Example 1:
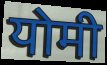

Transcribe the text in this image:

योमी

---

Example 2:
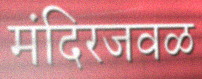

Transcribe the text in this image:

मंदिरजवळ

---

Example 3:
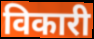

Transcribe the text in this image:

विकारी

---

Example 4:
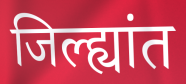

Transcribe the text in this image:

जिल्ह्यांत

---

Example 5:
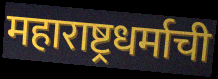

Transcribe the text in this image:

महाराष्ट्रधर्माची